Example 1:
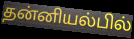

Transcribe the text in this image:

தன்னியல்பில்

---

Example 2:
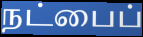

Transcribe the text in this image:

நட்பைப்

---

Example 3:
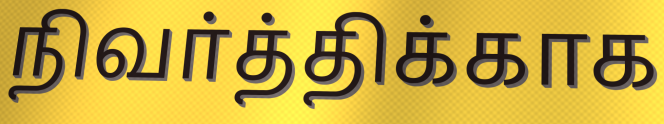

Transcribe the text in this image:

நிவர்த்திக்காக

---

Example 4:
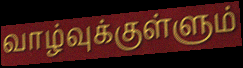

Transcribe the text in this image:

வாழ்வுக்குள்ளும்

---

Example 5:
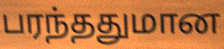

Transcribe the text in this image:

பரந்ததுமான